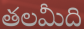
తలమీది